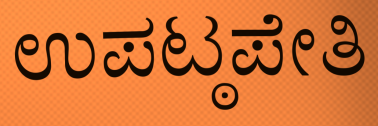
ಉಪಟ್ಠಪೇತಿ